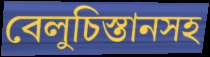
বেলুচিস্তানসহ